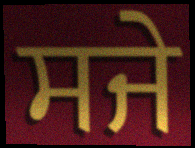
ਸਜੇ